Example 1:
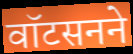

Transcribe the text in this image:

वॉटसनने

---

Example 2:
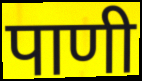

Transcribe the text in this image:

पाणी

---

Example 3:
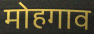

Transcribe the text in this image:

मोहगाव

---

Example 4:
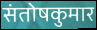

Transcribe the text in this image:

संतोषकुमार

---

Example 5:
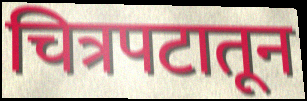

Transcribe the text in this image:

चित्रपटातून